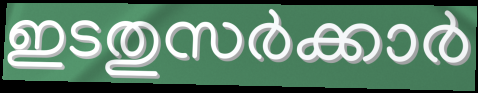
ഇടതുസർക്കാർ